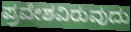
ಪ್ರವೇಶವಿರುವುದು